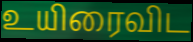
உயிரைவிட